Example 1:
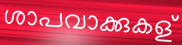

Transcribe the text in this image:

ശാപവാക്കുകള്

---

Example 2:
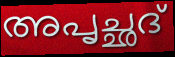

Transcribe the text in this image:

അപൃച്ഛദ്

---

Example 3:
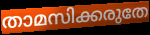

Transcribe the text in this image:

താമസിക്കരുതേ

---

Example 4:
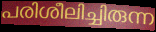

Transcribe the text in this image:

പരിശീലിച്ചിരുന്ന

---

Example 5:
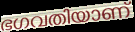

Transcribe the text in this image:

ഭഗവതിയാണ്